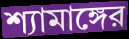
শ্যামাঙ্গের